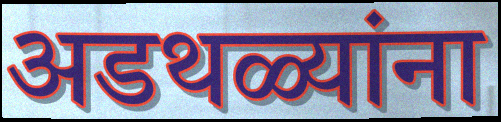
अडथळ्यांना